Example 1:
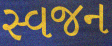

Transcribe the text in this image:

સ્વજન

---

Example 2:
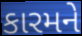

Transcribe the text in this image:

કારમને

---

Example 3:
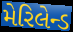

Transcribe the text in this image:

મેરિલેન્ડ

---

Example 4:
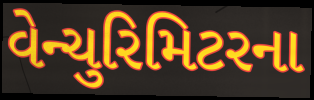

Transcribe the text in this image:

વેન્ચુરિમિટરના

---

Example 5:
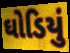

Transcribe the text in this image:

ઘોડિયું